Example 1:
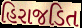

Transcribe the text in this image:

હિરાજડિત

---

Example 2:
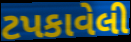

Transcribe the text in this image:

ટપકાવેલી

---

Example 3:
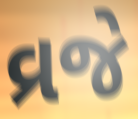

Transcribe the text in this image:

વ્રજે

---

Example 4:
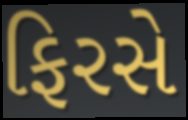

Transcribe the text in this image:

ફિરસે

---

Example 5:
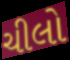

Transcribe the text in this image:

ચીલો